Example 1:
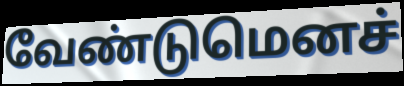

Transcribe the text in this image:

வேண்டுமெனச்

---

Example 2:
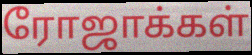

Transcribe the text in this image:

ரோஜாக்கள்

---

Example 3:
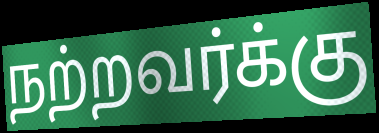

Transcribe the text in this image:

நற்றவர்க்கு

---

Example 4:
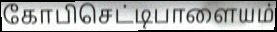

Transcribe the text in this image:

கோபிசெட்டிபாளையம்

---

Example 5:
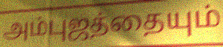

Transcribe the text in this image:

அம்புஜத்தையும்